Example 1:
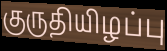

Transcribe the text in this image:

குருதியிழப்பு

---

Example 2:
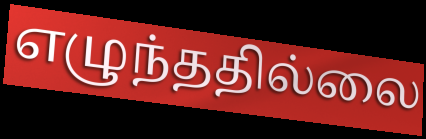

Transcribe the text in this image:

எழுந்ததில்லை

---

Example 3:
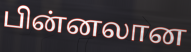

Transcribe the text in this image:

பின்னலான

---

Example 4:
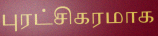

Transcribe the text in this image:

புரட்சிகரமாக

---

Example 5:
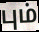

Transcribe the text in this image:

பும்